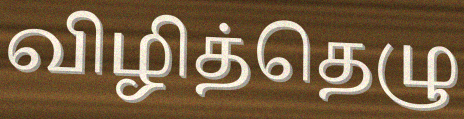
விழித்தெழு